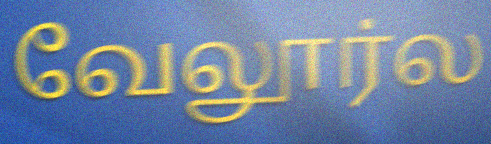
வேலூர்ல